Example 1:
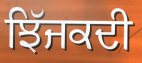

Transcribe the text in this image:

ਝਿੱਜਕਦੀ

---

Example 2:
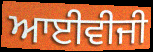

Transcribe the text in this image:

ਆਈਵੀਜੀ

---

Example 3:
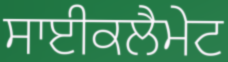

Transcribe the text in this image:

ਸਾਈਕਲੈਮੇਟ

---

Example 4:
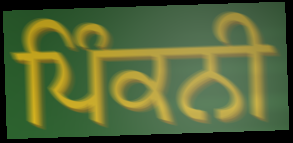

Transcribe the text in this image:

ਪਿੰਕਨੀ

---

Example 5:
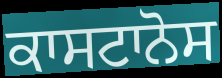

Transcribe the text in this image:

ਕਾਸਟਾਨੋਸ